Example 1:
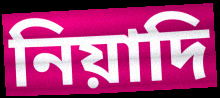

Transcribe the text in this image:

নিয়াদি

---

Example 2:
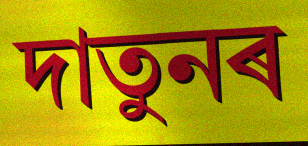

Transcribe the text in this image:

দাতুনৰ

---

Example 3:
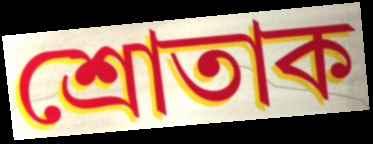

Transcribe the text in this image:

শ্ৰোতাক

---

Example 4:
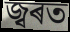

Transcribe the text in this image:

জ্বৰত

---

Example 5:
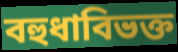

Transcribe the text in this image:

বহুধাবিভক্ত